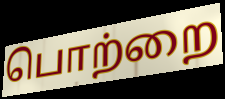
பொற்றை